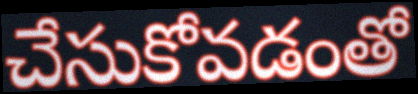
చేసుకోవడంతో